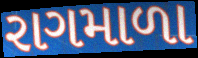
રાગમાળા